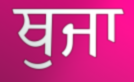
ਥੁਜਾ